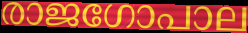
രാജഗോപാല